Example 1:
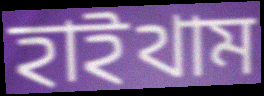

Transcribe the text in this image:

হাইথাম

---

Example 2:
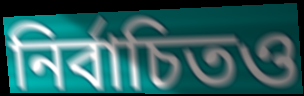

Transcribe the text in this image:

নির্বাচিতও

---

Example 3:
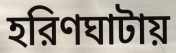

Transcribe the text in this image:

হরিণঘাটায়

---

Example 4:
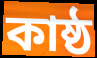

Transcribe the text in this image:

কাষ্ঠ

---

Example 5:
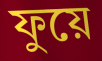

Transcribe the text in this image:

ফুয়ে